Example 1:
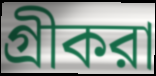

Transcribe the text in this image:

গ্রীকরা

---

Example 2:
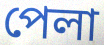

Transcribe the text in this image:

পেলা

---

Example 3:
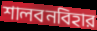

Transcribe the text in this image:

শালবনবিহার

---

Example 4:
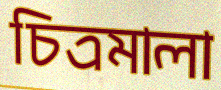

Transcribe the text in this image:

চিত্রমালা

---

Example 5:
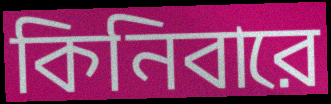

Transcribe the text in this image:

কিনিবারে